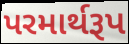
પરમાર્થરૂપ